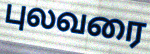
புலவரை